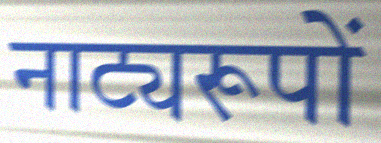
नाट्यरूपों